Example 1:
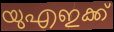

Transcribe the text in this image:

യുഎഇക്ക്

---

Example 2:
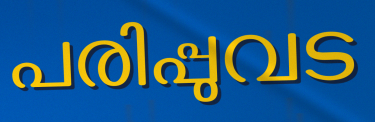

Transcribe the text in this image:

പരിപ്പുവട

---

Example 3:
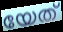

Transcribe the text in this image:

യേത്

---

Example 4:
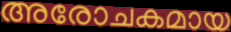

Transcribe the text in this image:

അരോചകമായ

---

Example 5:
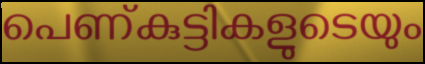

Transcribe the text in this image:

പെണ്കുട്ടികളുടെയും